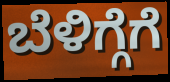
ಬೆಳಿಗ್ಗೆಗೆ